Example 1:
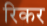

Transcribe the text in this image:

रिकर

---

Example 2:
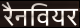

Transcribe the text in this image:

रैनवियर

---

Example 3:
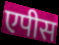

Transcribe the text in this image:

एपीस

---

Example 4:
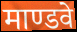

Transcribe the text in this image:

माण्डवे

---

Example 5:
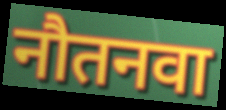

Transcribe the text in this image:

नौतनवा